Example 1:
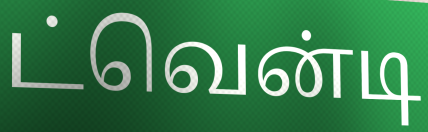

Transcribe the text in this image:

ட்வென்டி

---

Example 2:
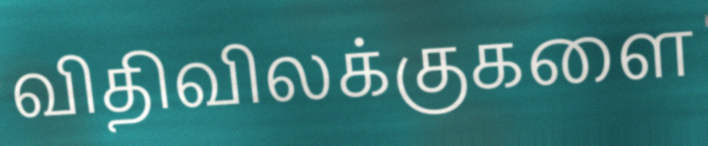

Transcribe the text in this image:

விதிவிலக்குகளை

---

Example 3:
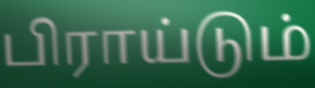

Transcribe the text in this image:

பிராய்டும்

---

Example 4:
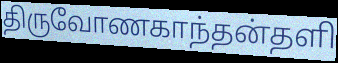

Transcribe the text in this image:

திருவோணகாந்தன்தளி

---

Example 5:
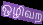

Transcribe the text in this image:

ஒழிவற